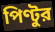
পিণ্টুর